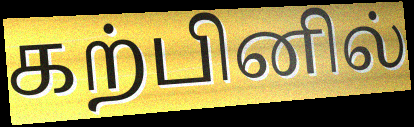
கற்பினில்